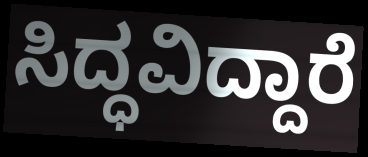
ಸಿದ್ಧವಿದ್ದಾರೆ